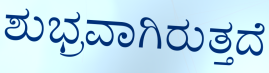
ಶುಭ್ರವಾಗಿರುತ್ತದೆ